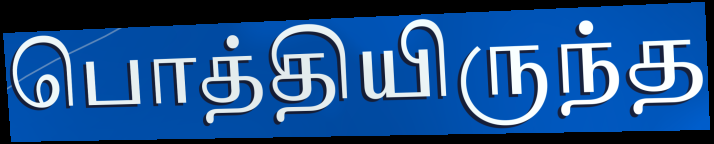
பொத்தியிருந்த